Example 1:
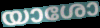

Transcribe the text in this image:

യാശോ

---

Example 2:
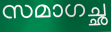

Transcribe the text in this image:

സമാഗച്ഛ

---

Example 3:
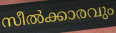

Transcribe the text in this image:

സീൽക്കാരവും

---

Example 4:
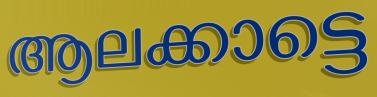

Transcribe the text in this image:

ആലക്കാട്ടെ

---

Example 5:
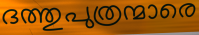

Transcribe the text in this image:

ദത്തുപുത്രന്മാരെ